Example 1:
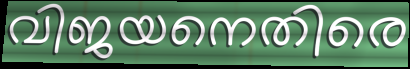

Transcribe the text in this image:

വിജയനെതിരെ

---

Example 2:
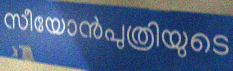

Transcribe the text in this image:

സീയോൻപുത്രിയുടെ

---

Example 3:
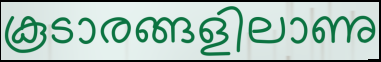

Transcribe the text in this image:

കൂടാരങ്ങളിലാണു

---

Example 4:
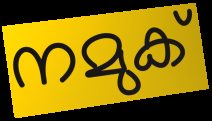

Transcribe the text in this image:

നമുക്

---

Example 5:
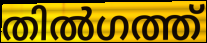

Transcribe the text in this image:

തിൽഗത്ത്